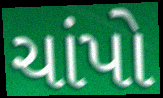
ચાંપો